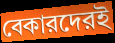
বেকারদেরই